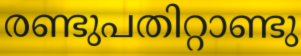
രണ്ടുപതിറ്റാണ്ടു